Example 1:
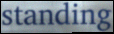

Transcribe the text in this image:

standing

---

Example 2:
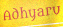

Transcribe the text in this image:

Adhyaru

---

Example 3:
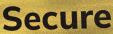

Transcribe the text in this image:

Secure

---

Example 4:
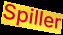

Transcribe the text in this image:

Spiller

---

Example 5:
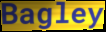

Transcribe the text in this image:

Bagley